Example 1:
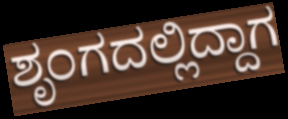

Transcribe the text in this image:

ಶೃಂಗದಲ್ಲಿದ್ದಾಗ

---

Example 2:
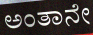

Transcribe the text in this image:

ಅಂತಾನೇ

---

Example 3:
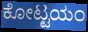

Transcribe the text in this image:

ಕೋಟ್ಟಯಂ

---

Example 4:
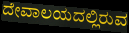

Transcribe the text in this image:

ದೇವಾಲಯದಲ್ಲಿರುವ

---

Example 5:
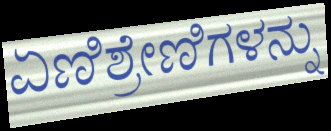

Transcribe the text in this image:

ಏಣಿಶ್ರೇಣಿಗಳನ್ನು